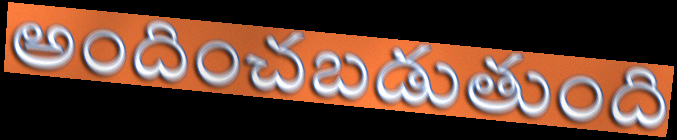
అందించబడుతుంది